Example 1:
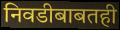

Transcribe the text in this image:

निवडीबाबतही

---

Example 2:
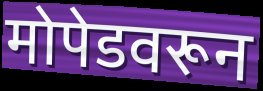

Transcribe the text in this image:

मोपेडवरून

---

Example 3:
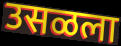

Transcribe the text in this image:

उसळला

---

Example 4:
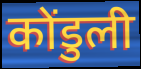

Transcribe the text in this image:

कोंडुली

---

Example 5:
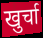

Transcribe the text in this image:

खुर्चा